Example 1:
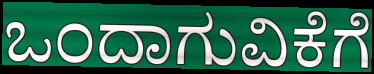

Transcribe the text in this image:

ಒಂದಾಗುವಿಕೆಗೆ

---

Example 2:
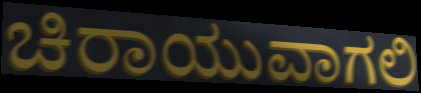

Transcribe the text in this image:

ಚಿರಾಯುವಾಗಲಿ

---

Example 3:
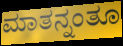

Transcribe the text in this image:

ಮಾತನ್ನಂತೂ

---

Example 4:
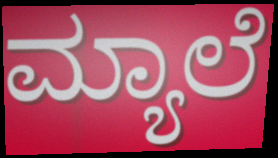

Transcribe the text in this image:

ಮ್ಯಾಲೆ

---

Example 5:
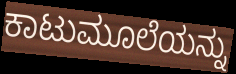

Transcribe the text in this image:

ಕಾಟುಮೂಲೆಯನ್ನು